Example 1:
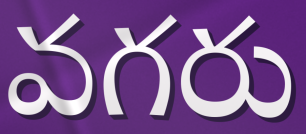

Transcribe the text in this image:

వగరు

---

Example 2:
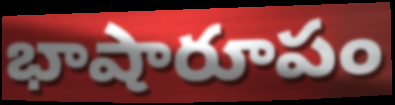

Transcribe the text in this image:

భాషారూపం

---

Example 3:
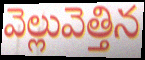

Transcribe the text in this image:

వెల్లువెత్తిన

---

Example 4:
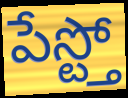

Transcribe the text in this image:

పేస్ట్తో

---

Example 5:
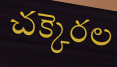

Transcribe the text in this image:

చక్కెరల